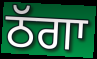
ਠੱਗਾ